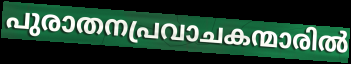
പുരാതനപ്രവാചകന്മാരിൽ